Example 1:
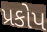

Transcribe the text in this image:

પ્રકોપ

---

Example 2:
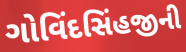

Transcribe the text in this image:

ગોવિંદસિંહજીની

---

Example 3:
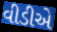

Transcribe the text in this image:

વીડીએ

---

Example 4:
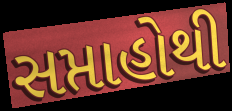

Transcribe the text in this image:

સપ્તાહોથી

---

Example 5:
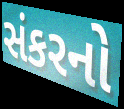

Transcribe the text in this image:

સંકરનો